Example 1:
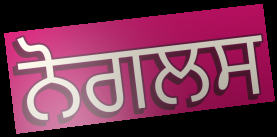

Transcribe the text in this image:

ਨੋਗਲਸ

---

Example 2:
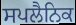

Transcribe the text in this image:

ਸਪਲੈਨਿਕ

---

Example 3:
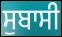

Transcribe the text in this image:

ਸੁਬਾਸੀ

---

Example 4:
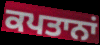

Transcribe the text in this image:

ਕਪਤਾਨਾਂ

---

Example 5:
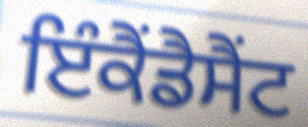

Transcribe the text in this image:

ਇੰਕੈਂਡੈਸੈਂਟ